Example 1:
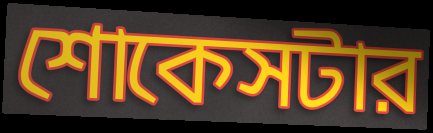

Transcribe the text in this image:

শোকেসটার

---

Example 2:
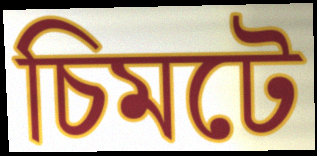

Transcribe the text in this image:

চিমটে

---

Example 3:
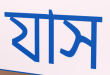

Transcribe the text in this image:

যাস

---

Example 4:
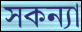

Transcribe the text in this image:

সকন্যা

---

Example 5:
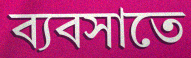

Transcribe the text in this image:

ব্যবসাতে